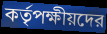
কর্তৃপক্ষীয়দের